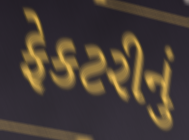
ફેકટરીનું